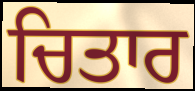
ਚਿਤਾਰ